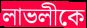
লাভলীকে